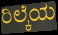
ರಿಲ್ಕೆಯ